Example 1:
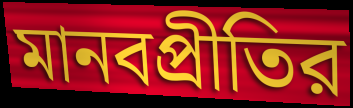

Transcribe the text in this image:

মানবপ্রীতির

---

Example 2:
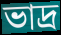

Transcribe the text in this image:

ভাদ্র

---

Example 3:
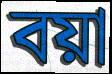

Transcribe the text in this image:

বয়া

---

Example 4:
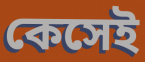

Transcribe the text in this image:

কেসেই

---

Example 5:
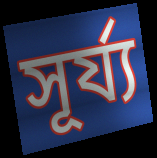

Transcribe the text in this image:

সূর্য্য